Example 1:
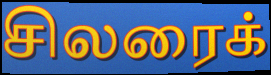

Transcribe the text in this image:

சிலரைக்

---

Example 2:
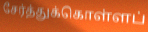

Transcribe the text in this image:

சேர்த்துக்கொள்ளப்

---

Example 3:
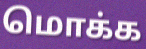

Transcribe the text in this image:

மொக்க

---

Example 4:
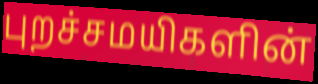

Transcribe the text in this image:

புறச்சமயிகளின்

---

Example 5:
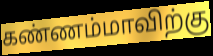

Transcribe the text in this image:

கண்ணம்மாவிற்கு